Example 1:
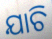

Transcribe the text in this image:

ଯାଚି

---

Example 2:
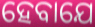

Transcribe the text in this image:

ହେବାଯେ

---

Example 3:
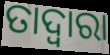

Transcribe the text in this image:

ତାଦ୍ବାରା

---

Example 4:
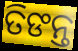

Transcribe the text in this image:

ତିଙନ୍ତ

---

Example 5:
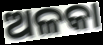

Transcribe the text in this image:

ଅଳକା